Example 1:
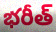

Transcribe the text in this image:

భరీత్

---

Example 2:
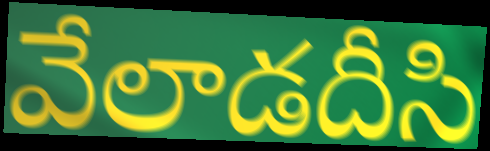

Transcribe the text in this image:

వేలాడదీసి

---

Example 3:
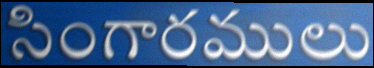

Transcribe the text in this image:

సింగారములు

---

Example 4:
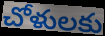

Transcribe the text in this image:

చోళులకు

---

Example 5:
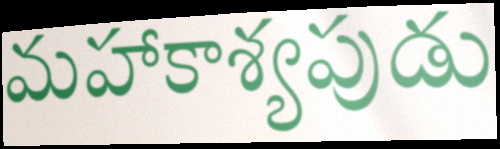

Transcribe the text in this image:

మహాకాశ్యపుడు